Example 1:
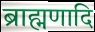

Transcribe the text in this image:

ब्राह्मणादि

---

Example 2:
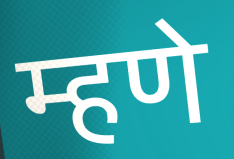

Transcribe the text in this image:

म्हणे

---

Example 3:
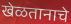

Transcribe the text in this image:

खेळतानाचे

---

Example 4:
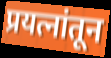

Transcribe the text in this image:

प्रयत्नांतून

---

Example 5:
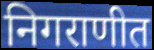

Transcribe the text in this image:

निगराणीत